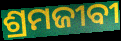
ଶ୍ରମଜୀବୀ